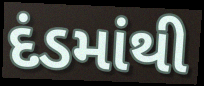
દંડમાંથી